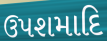
ઉપશમાદિ